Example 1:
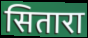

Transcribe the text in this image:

सितारा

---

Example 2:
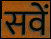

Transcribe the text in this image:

सवें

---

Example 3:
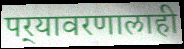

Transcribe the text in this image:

पर्यावरणालाही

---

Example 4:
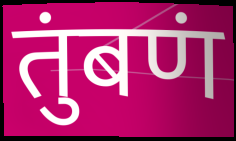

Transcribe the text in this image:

तुंबणं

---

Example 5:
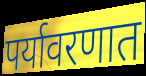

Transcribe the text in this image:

पर्यावरणात